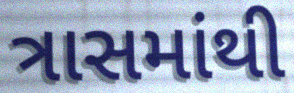
ત્રાસમાંથી